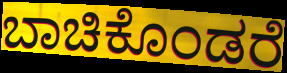
ಬಾಚಿಕೊಂಡರೆ